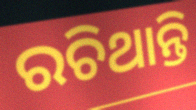
ରଚିଥାନ୍ତି